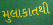
મુલાકાતથી